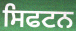
ਸਿਫਟਨ